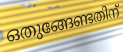
ഒതുങ്ങേണ്ടതിന്